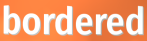
bordered